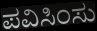
ಪವಿಸಿಂಸು